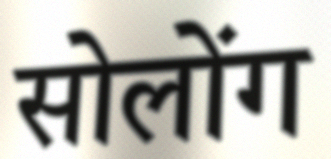
सोलोंग